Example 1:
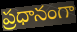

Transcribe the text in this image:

ప్రధానంగా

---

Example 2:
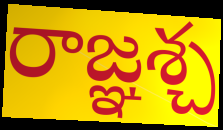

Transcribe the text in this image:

రాజ్ఞశ్చ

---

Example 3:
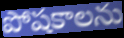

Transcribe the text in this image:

పోషకాలను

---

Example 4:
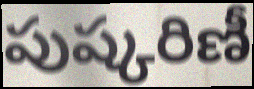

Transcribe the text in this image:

పుష్కరిణీ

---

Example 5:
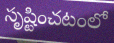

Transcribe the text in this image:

సృష్టించటంలో